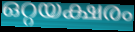
ഒറ്റയക്ഷരം